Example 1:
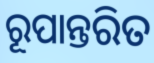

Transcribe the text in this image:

ରୂପାନ୍ତରିତ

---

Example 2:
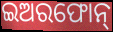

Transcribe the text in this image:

ଇଅରଫୋନ୍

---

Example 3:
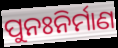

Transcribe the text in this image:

ପୁନଃନିର୍ମାଣ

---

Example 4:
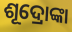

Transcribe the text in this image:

ଶୂଦ୍ରୋଙ୍କା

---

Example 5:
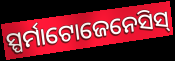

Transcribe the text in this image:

ସ୍ପର୍ମାଟୋଜେନେସିସ୍